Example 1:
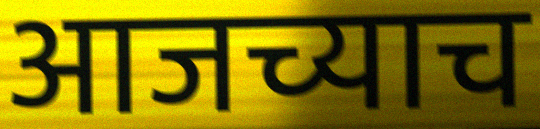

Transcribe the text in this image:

आजच्याच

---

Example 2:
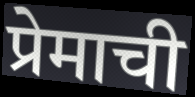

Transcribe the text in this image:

प्रेमाची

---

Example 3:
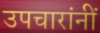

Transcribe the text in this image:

उपचारांनीं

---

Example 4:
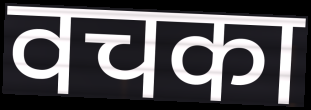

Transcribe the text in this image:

वचका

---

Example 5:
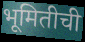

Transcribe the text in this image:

भूमितीची